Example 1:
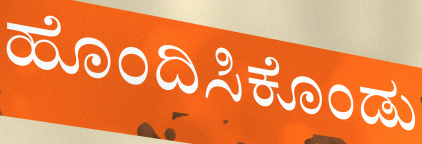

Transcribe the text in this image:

ಹೊಂದಿಸಿಕೊಂಡು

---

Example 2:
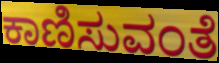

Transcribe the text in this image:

ಕಾಣಿಸುವಂತೆ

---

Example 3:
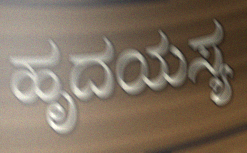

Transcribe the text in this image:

ಹೃದಯಸ್ಯ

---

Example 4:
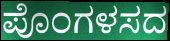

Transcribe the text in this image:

ಪೊಂಗಳಸದ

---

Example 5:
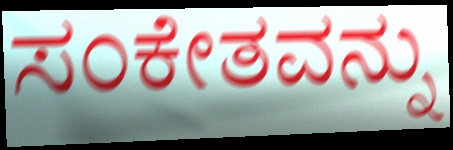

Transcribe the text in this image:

ಸಂಕೇತವನ್ನು